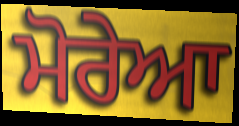
ਮੋਰੇਆ